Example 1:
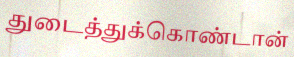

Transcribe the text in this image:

துடைத்துக்கொண்டான்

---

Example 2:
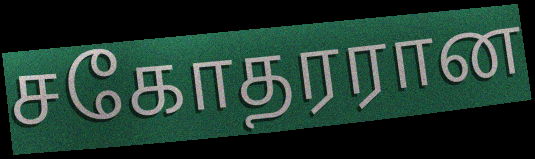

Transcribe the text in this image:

சகோதரரான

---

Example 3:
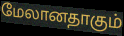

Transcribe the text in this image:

மேலானதாகும்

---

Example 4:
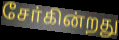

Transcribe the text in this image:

சேர்கின்றது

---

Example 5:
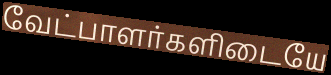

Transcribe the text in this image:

வேட்பாளர்களிடையே